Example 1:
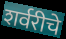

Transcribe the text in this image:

शर्वरीचे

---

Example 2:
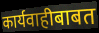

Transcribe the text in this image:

कार्यवाहीबाबत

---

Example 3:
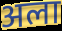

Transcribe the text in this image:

अला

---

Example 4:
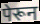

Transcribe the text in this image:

पेरून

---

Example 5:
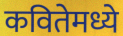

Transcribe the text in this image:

कवितेमध्ये